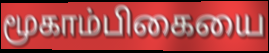
மூகாம்பிகையை